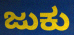
ಜುಕು